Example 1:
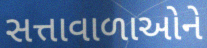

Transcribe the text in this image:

સત્તાવાળાઓને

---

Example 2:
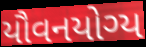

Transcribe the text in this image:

યૌવનયોગ્ય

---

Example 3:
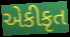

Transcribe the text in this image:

એકીકૃત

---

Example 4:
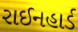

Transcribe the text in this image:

રાઈનહાર્ડ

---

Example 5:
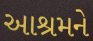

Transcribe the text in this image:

આશ્રમને